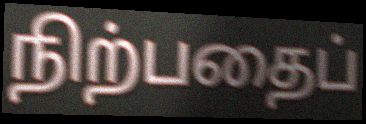
நிற்பதைப்